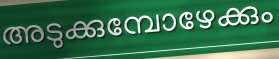
അടുക്കുമ്പോഴേക്കും